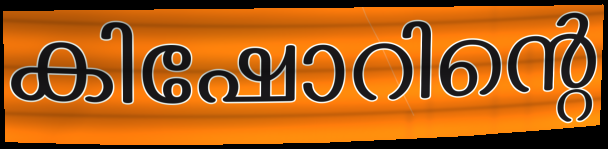
കിഷോറിന്റെ